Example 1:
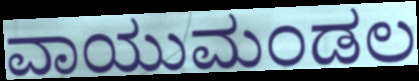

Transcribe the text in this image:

ವಾಯುಮಂಡಲ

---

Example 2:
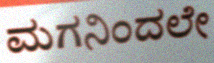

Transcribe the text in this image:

ಮಗನಿಂದಲೇ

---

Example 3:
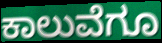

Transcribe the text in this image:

ಕಾಲುವೆಗೂ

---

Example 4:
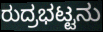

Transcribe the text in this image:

ರುದ್ರಭಟ್ಟನು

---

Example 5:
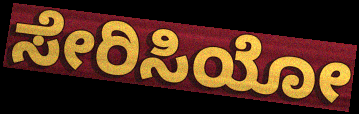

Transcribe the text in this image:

ಸೇರಿಸಿಯೋ